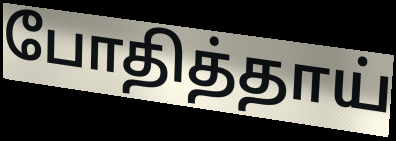
போதித்தாய்